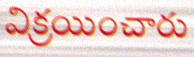
విక్రయించారు